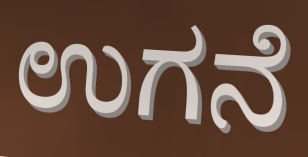
ಉಗನೆ